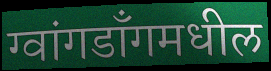
ग्वांगडाँगमधील